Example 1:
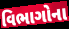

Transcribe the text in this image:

વિભાગોના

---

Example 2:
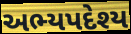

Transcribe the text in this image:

અભ્યપદેશ્ય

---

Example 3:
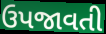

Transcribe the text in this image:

ઉપજાવતી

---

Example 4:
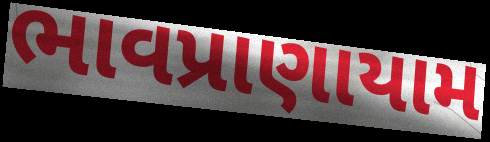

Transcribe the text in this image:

ભાવપ્રાણાયામ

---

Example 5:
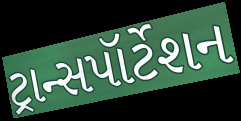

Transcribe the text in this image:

ટ્રાન્સપૉર્ટેશન